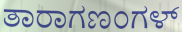
ತಾರಾಗಣಂಗಳ್